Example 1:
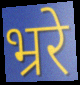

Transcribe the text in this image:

भ्ररे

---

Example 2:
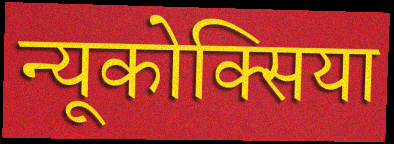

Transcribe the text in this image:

न्यूकोक्सिया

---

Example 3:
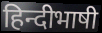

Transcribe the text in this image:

हिन्दीभाषी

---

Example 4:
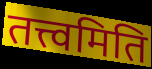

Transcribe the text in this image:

तत्त्वमिति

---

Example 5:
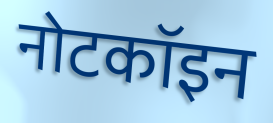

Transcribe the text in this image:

नोटकॉइन